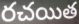
రచయిత